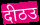
दीठउ